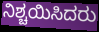
ನಿಶ್ಚಯಿಸಿದರು